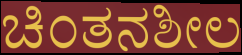
ಚಿಂತನಶೀಲ